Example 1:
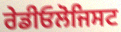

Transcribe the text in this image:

ਰੇਡੀਓਲੋਜਿਸਟ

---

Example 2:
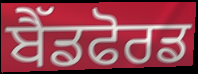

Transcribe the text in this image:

ਬੈੱਡਫੋਰਡ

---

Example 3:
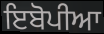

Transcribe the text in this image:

ਇਬੋਪੀਆ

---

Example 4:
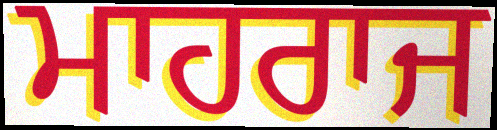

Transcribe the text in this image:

ਮਾਹਰਾਜ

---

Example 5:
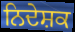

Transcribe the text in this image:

ਨਿਦੇਸ਼ਕ